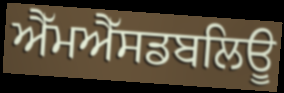
ਐੱਮਐੱਸਡਬਲਿਊ